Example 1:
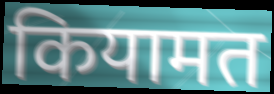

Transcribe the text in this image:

कियामत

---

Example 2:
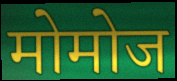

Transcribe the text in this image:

मोमोज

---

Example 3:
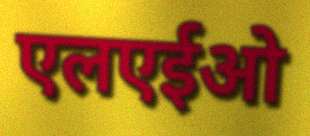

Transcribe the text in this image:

एलएईओ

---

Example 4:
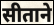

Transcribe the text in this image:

सीताने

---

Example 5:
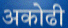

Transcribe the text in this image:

अकोढी